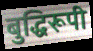
बुद्धिरूपी